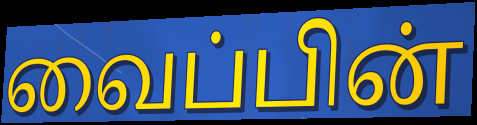
வைப்பின்